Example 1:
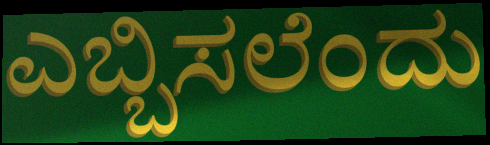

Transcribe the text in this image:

ಎಬ್ಬಿಸಲೆಂದು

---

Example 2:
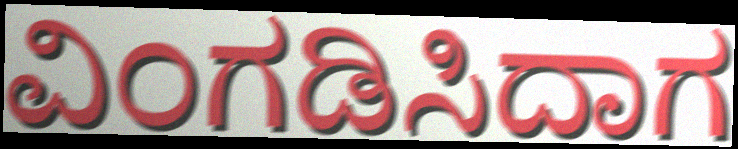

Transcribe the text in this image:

ವಿಂಗಡಿಸಿದಾಗ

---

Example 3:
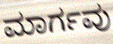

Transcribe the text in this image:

ಮಾರ್ಗವು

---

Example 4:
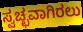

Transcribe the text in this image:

ಸ್ವಚ್ಛವಾಗಿರಲು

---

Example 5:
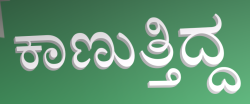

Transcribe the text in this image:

ಕಾಣುತ್ತಿದ್ದ